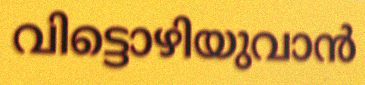
വിട്ടൊഴിയുവാൻ